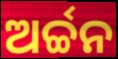
ଅର୍ଚ୍ଚନ